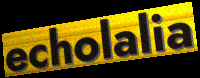
echolalia